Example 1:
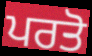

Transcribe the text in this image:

ਪਰਤੋ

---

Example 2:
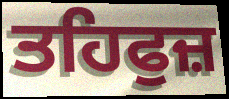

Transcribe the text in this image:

ਤਹਿਫੁਜ਼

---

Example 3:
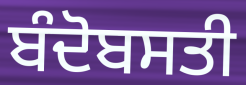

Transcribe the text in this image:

ਬੰਦੋਬਸਤੀ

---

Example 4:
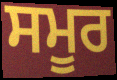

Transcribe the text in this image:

ਸਮੂਰ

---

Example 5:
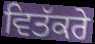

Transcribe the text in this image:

ਵਿਤੱਕਰੇ